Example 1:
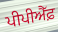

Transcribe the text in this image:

ਪੀਪੀਐੱਫ਼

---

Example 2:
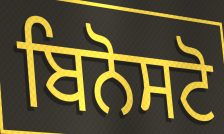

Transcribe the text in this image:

ਬਿਨੋਸਟੋ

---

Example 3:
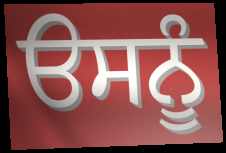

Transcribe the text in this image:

ੳਸਨੂੰ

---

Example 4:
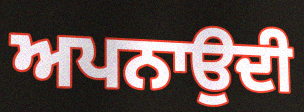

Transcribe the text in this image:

ਅਪਨਾਉਦੀ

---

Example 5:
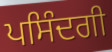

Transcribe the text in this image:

ਪਸਿੰਦਗੀ